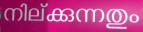
നില്ക്കുന്നതും